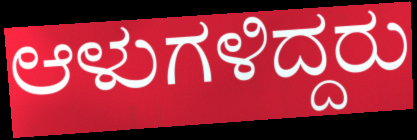
ಆಳುಗಳಿದ್ದರು